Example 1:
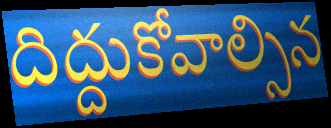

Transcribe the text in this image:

దిద్దుకోవాల్సిన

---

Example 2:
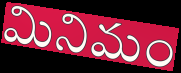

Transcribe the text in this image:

మినిమం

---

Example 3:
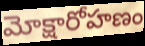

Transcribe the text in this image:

మోక్షారోహణం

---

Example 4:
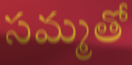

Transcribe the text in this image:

సమ్మతో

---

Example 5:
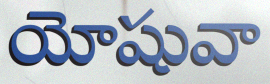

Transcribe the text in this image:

యోషువా